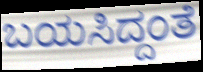
ಬಯಸಿದ್ದಂತೆ